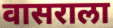
वासराला